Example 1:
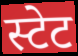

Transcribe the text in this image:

स्टेट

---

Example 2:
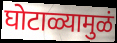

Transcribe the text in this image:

घोटाळ्यामुळं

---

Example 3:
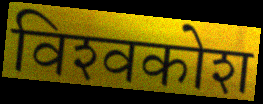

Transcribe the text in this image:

विश्वकोश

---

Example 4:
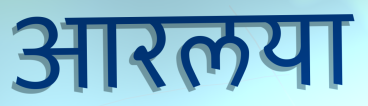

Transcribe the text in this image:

आरलया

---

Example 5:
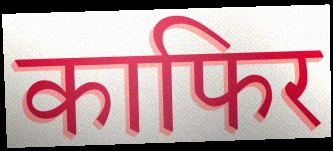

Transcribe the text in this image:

काफिर